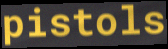
pistols